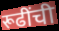
रूढींची